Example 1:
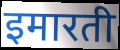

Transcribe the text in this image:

इमारती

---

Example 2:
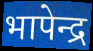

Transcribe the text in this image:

भापेन्द्र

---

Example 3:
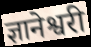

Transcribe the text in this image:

ज्ञानेश्वरी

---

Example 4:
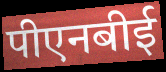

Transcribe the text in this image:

पीएनबीई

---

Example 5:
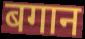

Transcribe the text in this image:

बगान